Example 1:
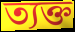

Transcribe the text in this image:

ত্যক্ত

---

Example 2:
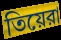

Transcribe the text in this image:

তিয়েরা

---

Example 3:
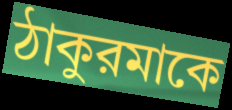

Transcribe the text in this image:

ঠাকুরমাকে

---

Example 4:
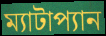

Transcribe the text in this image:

ম্যাটাপ্যান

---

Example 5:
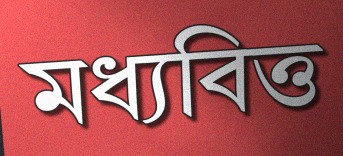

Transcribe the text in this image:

মধ্যবিত্ত